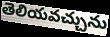
తెలియవచ్చును